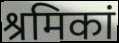
श्रमिकां